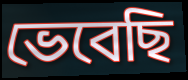
ভেবেছি